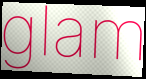
glam